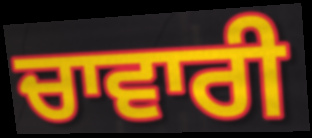
ਚਾਵਾਰੀ